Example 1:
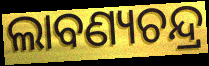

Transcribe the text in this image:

ଲାବଣ୍ୟଚନ୍ଦ୍ର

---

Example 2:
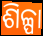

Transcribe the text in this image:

ଶିଳ୍ପା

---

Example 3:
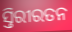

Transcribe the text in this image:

ସ୍ତିରୀରତନ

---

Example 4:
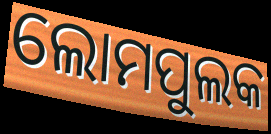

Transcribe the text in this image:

ଲୋମପୁଲକ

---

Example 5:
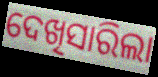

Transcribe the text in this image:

ଦେଖିସାରିଲା